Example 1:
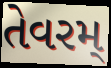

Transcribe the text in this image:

તેવરમ્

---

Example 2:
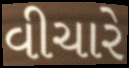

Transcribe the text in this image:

વીચારે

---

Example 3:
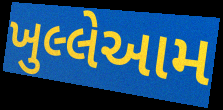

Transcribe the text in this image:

ખુલ્લેઆમ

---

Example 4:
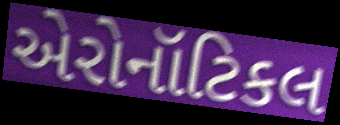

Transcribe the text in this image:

એરોનૉટિકલ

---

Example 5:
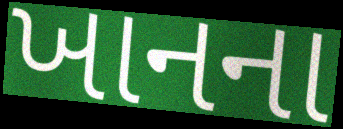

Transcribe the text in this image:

ખાનના